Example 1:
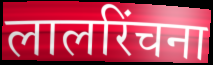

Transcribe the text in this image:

लालरिंचना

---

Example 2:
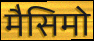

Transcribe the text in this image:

मैसिमो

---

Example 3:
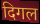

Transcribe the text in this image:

दिगल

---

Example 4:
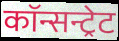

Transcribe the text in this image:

कॉन्सन्ट्रेट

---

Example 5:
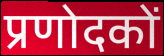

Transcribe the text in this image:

प्रणोदकों